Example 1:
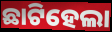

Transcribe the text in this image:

ଛାଟିହେଲା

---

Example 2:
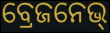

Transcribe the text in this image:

ବ୍ରେଜନେଭ୍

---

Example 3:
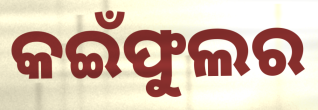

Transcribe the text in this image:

କଇଁଫୁଲର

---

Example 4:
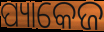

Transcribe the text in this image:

ପ୍ୟାକେଜ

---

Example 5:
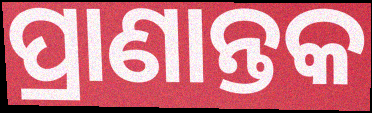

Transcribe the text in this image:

ପ୍ରାଣାନ୍ତକ